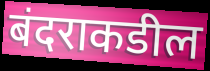
बंदराकडील